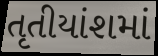
તૃતીયાંશમાં